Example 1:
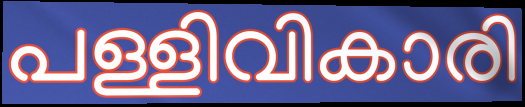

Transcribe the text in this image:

പള്ളിവികാരി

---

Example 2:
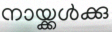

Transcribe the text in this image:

നായ്ക്കൾക്കു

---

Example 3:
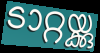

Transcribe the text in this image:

ടാറ്റയ്ക്കു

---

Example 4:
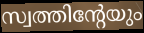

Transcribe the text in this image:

സ്വത്തിന്റേയും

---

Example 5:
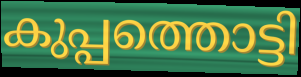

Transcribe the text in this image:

കുപ്പത്തൊട്ടി